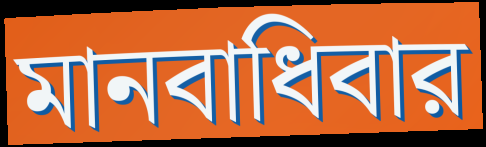
মানবাধিবার